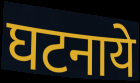
घटनाये